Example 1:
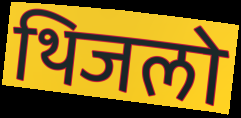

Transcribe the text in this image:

थिजलो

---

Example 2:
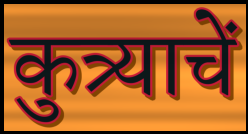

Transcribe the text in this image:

कुत्र्याचें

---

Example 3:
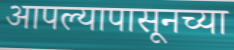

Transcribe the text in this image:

आपल्यापासूनच्या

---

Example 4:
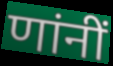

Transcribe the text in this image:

णांनीं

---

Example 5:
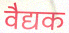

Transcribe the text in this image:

वैद्यक